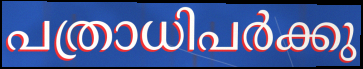
പത്രാധിപർക്കു